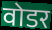
वोडर